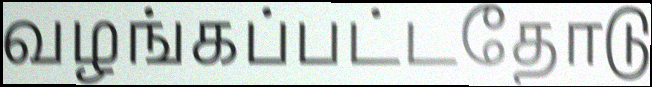
வழங்கப்பட்டதோடு